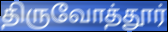
திருவோத்தூர்